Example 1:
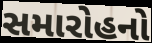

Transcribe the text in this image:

સમારોહનો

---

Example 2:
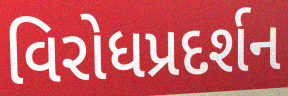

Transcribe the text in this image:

વિરોધપ્રદર્શન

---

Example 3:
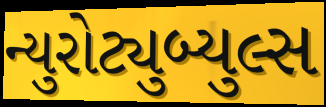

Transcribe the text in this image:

ન્યુરોટ્યુબ્યુલ્સ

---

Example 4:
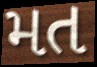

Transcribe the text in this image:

મત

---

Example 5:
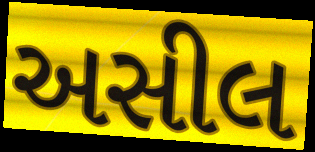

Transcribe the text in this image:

અસીલ